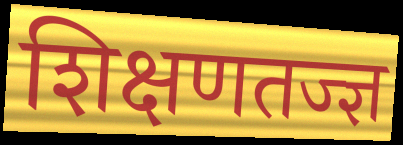
शिक्षणतज्ज्ञ